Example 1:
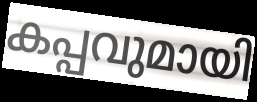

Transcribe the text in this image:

കപ്പവുമായി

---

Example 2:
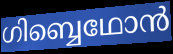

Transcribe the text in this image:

ഗിബ്ബെഥോൻ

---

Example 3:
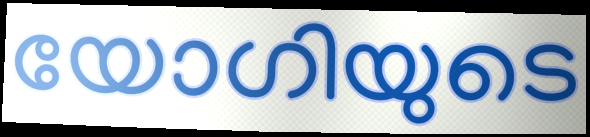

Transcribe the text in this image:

യോഗിയുടെ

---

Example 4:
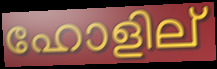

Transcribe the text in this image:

ഹോളില്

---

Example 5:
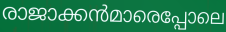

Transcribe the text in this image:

രാജാക്കൻമാരെപ്പോലെ